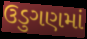
ઉડુગણમાં